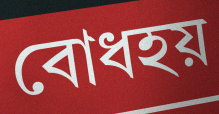
বোধহয়